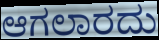
ಆಗಲಾರದು